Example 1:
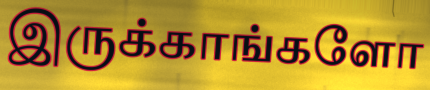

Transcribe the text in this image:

இருக்காங்களோ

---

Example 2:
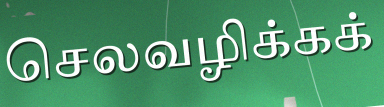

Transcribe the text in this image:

செலவழிக்கக்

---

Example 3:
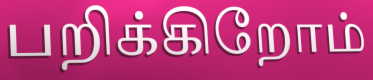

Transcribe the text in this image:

பறிக்கிறோம்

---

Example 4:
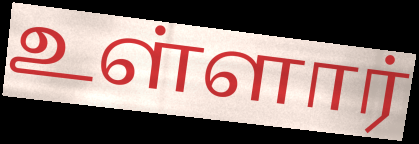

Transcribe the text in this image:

உள்ளார்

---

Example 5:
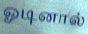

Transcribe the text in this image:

ஓடினால்